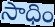
సాధిం